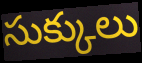
సుక్కులు